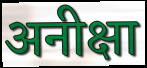
अनीक्षा